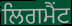
ਲਿਗਮੈਂਟ